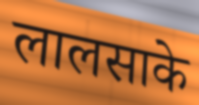
लालसाके